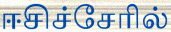
ஈசிச்சேரில்